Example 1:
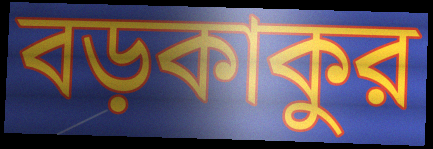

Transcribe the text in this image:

বড়কাকুর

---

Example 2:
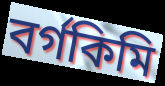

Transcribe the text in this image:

বর্গকিমি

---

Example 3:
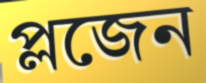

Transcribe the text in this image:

প্লজেন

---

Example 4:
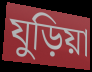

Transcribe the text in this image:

যুড়িয়া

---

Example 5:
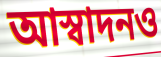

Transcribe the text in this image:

আস্বাদনও